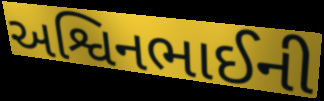
અશ્વિનભાઈની